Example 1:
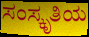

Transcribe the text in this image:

ಸಂಸ್ಕೃತಿಯ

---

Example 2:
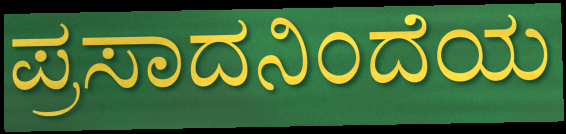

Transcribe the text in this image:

ಪ್ರಸಾದನಿಂದೆಯ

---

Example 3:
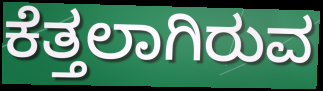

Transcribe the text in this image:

ಕೆತ್ತಲಾಗಿರುವ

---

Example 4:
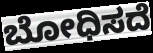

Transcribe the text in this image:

ಬೋಧಿಸದೆ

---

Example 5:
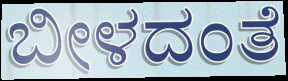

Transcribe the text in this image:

ಬೀಳದಂತೆ